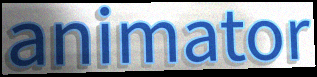
animator